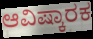
ಆವಿಷ್ಕಾರಕ